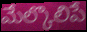
మేల్కొలిపే